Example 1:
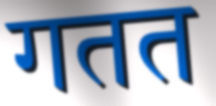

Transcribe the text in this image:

गतत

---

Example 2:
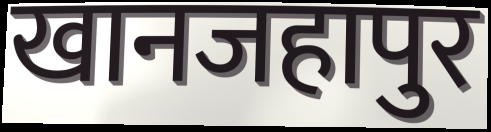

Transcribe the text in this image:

खानजहापुर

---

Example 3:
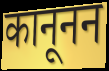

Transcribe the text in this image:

कानूनन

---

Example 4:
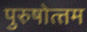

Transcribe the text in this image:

पुरुषोत्‍तम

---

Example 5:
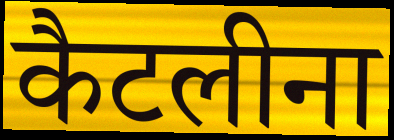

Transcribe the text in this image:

कैटलीना